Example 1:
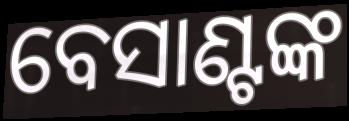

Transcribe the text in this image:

ବେସାଣ୍ଟଙ୍କ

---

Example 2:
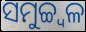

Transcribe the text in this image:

ସମୁଚ୍ଚ୍ୱଳ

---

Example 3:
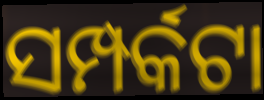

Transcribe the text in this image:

ସମ୍ପର୍କଟା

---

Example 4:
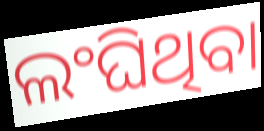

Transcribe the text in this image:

ଲଂଘିଥିବା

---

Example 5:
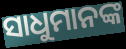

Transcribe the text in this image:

ସାଧୁମାନଙ୍କ